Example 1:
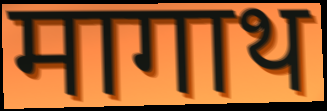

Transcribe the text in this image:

मागाथ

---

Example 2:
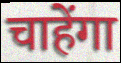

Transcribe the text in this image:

चाहेंगा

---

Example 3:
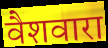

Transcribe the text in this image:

वैशवारा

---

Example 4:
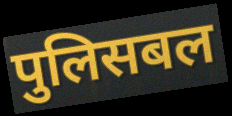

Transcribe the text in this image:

पुलिसबल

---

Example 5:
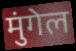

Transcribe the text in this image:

मुंगेल